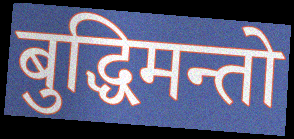
बुद्धिमन्तो